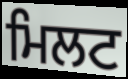
ਮਿਲਟ